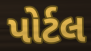
પોર્ટલ